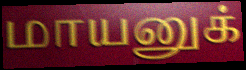
மாயனுக்